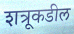
शत्रूकडील